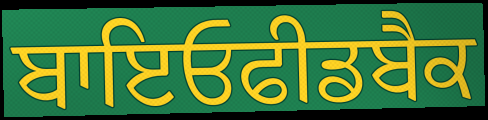
ਬਾਇਓਫੀਡਬੈਕ